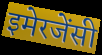
इमेरजेंसी